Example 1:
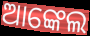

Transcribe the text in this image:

ଆଙ୍କେଲ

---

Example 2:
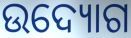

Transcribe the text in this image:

ଉଦ୍ୟୋଗ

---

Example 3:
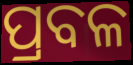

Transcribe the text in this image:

ପ୍ରବଳ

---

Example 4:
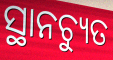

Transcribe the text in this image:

ସ୍ଥାନଚ୍ୟୁତ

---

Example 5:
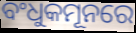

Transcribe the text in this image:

ବଂଧୁକମୂନରେ